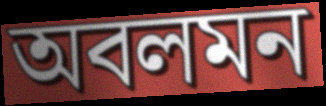
অবলমন